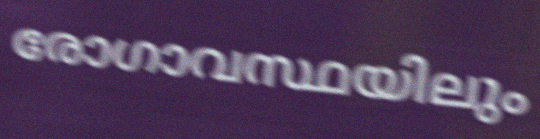
രോഗാവസ്ഥയിലും